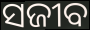
ସଜୀବ